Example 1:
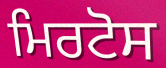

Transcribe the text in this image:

ਮਿਰਟੋਸ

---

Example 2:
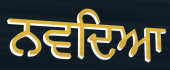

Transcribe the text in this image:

ਨਵਦਿਆ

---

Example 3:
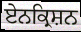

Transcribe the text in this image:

ਏਨਕ੍ਰਿਸ਼ਨ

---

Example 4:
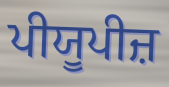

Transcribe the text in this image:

ਪੀਯੂਪੀਜ਼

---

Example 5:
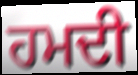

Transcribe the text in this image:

ਹਮਦੀ